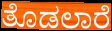
ತೊಡಲಾರೆ